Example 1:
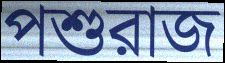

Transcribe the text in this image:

পশুরাজ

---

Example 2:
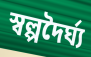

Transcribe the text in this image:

স্বল্পদৈর্ঘ্য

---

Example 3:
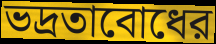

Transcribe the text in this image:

ভদ্রতাবোধের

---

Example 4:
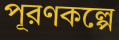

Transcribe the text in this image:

পূরণকল্পে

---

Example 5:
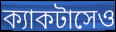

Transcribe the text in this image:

ক্যাকটাসেও